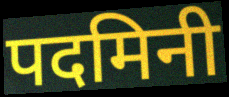
पदमिनी